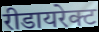
रीडायरेक्ट